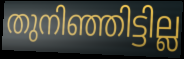
തുനിഞ്ഞിട്ടില്ല